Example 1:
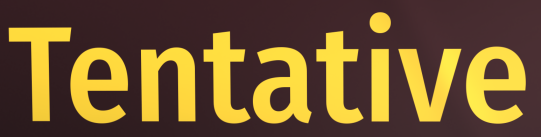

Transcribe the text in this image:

Tentative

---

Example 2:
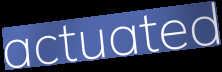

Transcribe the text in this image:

actuated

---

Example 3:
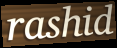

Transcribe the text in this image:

rashid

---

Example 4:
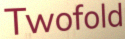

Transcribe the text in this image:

Twofold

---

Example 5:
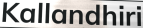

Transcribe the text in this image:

Kallandhiri